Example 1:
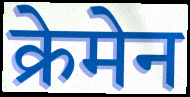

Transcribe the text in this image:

क्रेमेन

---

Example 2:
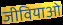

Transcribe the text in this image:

जीवियाओ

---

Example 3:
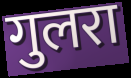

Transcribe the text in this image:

गुलरा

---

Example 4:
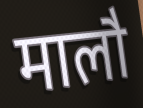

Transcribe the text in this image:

मालौ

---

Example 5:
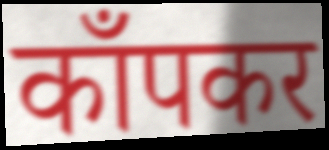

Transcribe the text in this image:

काँपकर